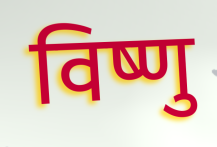
विष्णु